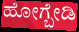
ಹೋಗ್ಬೇಡಿ